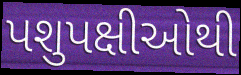
પશુપક્ષીઓથી